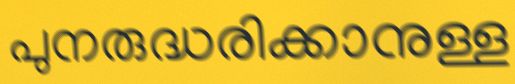
പുനരുദ്ധരിക്കാനുള്ള